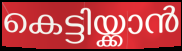
കെട്ടിയ്ക്കാൻ